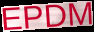
EPDM